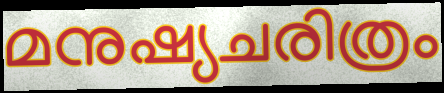
മനുഷ്യചരിത്രം